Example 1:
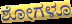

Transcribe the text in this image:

ಶೋಗಳೂ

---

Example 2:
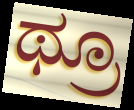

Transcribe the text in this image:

ಥ್ರೂ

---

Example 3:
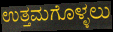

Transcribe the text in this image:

ಉತ್ತಮಗೊಳ್ಳಲು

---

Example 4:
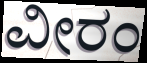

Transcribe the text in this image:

ವೀರಂ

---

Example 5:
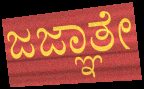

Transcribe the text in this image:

ಜಜ್ಞಾತೇ